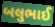
બલુભાઈ